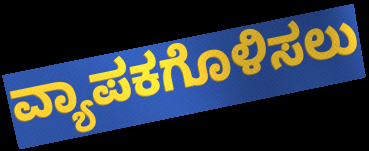
ವ್ಯಾಪಕಗೊಳಿಸಲು